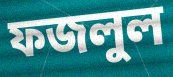
ফজলুল